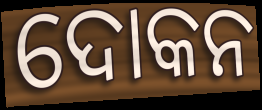
ଦୋକନ